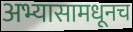
अभ्यासामधूनच